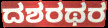
ದಶರಥರ